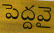
పెద్దవై